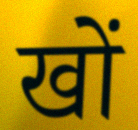
खों